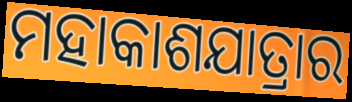
ମହାକାଶଯାତ୍ରାର